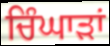
ਚਿੰਘਾੜਾਂ